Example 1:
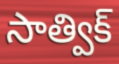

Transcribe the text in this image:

సాత్విక్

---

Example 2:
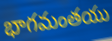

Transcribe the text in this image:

భాగమంతయు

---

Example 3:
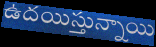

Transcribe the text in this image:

ఉదయిస్తున్నాయి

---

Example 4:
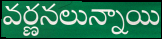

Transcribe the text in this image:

వర్ణనలున్నాయి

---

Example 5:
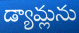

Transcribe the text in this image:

డ్యామ్లను